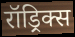
रॉड्रिक्स